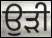
ਉਡ਼ੀ